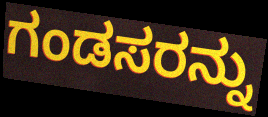
ಗಂಡಸರನ್ನು